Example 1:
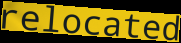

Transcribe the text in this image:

relocated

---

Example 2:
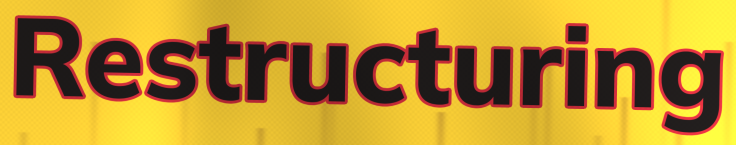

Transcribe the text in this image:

Restructuring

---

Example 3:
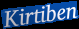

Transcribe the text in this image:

Kirtiben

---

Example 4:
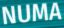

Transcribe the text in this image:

NUMA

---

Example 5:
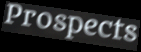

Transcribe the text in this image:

Prospects